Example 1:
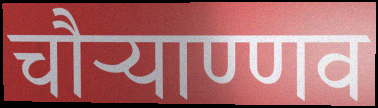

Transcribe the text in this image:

चौऱ्याण्णव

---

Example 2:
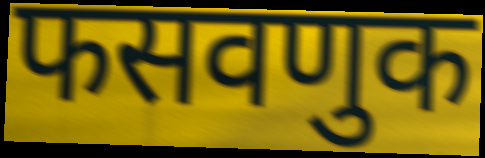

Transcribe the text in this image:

फसवणुक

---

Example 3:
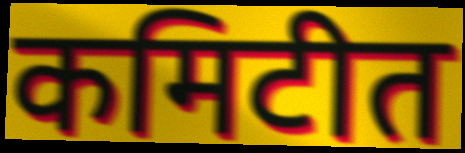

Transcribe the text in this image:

कमिटीत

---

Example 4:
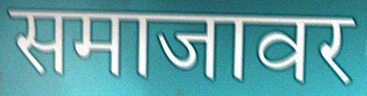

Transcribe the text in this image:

समाजावर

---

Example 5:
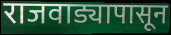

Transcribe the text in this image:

राजवाड्यापासून